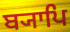
ਬ੍ਯਾਪਿ